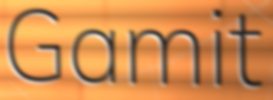
Gamit